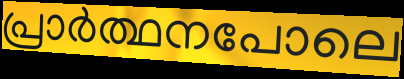
പ്രാർത്ഥനപോലെ